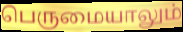
பெருமையாலும்